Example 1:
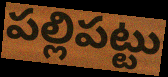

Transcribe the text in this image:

పల్లిపట్టు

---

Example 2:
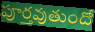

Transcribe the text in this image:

పూర్తవుతుందో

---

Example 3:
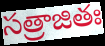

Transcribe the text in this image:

సత్రాజితః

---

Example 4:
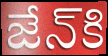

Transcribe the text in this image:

జేన్‌కి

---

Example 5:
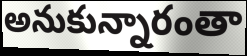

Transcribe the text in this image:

అనుకున్నారంతా